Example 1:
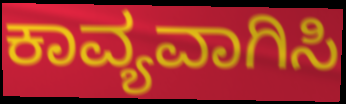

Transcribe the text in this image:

ಕಾವ್ಯವಾಗಿಸಿ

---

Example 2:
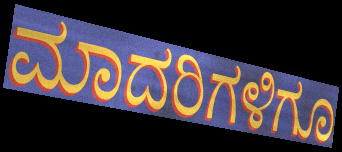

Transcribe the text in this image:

ಮಾದರಿಗಳಿಗೂ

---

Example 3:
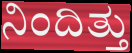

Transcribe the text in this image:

ನಿಂದಿತ್ತು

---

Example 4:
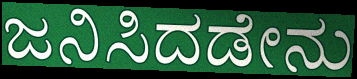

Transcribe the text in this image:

ಜನಿಸಿದಡೇನು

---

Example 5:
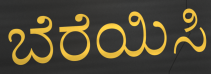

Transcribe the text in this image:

ಬೆರೆಯಿಸಿ